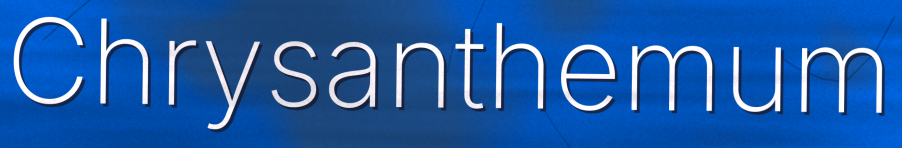
Chrysanthemum